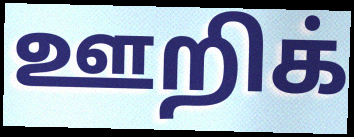
ஊறிக்